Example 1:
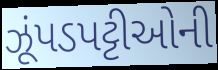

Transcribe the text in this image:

ઝૂંપડપટ્ટીઓની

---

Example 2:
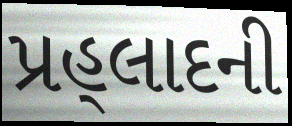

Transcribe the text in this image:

પ્રહ્‌લાદની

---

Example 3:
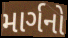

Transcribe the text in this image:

માર્ગનો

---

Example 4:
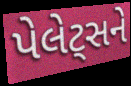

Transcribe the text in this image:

પેલેટ્સને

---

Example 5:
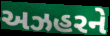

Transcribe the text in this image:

અઝહરને